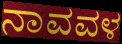
ನಾವವಳ